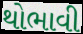
થોભાવી